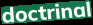
doctrinal